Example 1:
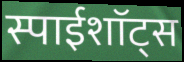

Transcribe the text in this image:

स्पाईशॉट्स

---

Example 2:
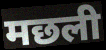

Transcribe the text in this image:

मछली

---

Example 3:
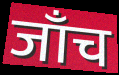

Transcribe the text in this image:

जाँच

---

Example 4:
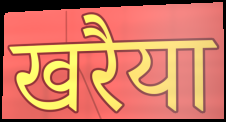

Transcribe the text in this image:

खरैया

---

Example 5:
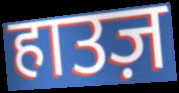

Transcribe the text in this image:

हाउज़